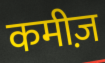
कमीज़